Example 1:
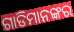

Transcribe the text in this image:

ଗାଡିମାନଙ୍କର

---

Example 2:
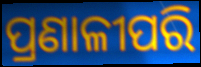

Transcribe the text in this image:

ପ୍ରଣାଳୀପରି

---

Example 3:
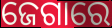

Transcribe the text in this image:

ଜେଗାରେ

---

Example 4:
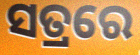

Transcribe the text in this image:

ସତ୍ରରେ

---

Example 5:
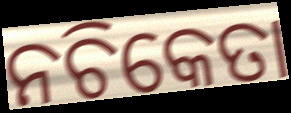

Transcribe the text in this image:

ନଚିକେତା